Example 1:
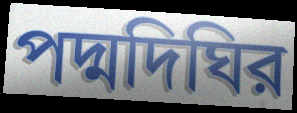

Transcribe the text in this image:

পদ্মদিঘির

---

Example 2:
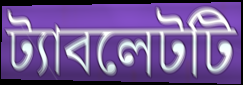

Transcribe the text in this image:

ট্যাবলেটটি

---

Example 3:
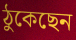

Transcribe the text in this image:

ঠুকেছেন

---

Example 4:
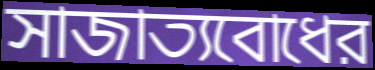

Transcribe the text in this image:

সাজাত্যবোধের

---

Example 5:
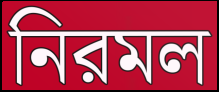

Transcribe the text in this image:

নিরমল